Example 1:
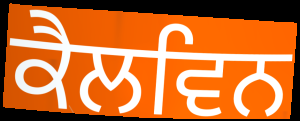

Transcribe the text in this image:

ਕੈਲਵਿਨ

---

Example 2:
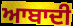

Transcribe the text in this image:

ਆਬਾਦੀ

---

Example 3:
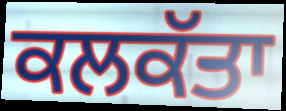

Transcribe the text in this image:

ਕਲਕੱਤਾ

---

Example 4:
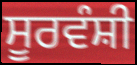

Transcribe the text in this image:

ਸੂਰਵੰਸ਼ੀ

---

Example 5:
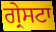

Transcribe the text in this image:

ਗ੍ਰੇਸਟਾ